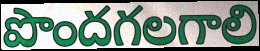
పొందగలగాలి